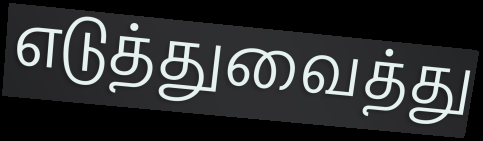
எடுத்துவைத்து